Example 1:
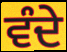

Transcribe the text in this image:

ਵੰਦੇ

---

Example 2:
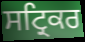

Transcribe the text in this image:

ਸਟ੍ਰਿਕਰ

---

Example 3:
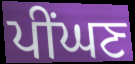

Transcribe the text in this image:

ਪੀਂਘਣ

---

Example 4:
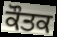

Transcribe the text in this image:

ਕੌਤਕ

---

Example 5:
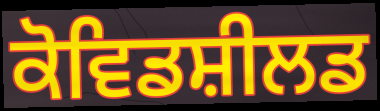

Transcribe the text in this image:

ਕੋਵਿਡਸ਼ੀਲਡ